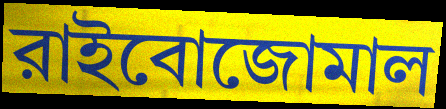
রাইবোজোমাল